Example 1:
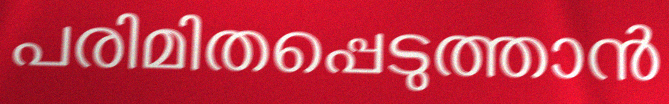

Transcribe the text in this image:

പരിമിതപ്പെടുത്താൻ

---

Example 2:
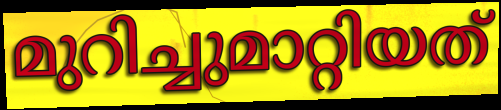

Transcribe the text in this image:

മുറിച്ചുമാറ്റിയത്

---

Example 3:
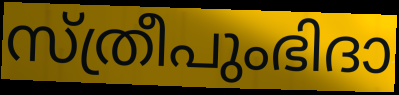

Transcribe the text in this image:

സ്ത്രീപുംഭിദാ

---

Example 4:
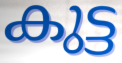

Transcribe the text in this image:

കുട്ട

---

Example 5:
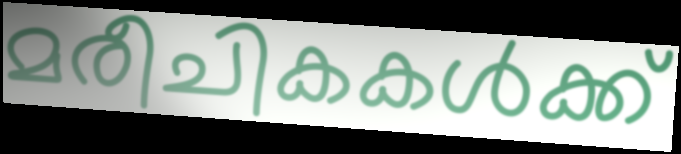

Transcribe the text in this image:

മരീചികകൾക്ക്